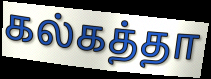
கல்கத்தா